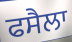
ਫਸੈਲਾ